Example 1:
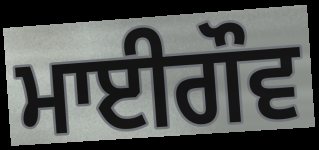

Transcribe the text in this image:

ਮਾਈਗੌਵ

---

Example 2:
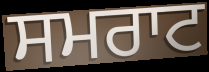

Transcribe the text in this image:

ਸਮਰਾਟ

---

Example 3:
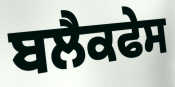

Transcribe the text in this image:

ਬਲੈਕਫੇਸ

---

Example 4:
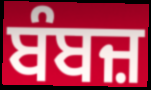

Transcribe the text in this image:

ਬੰਬਜ਼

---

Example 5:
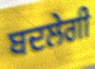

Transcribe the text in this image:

ਬਦਲੇਗੀ